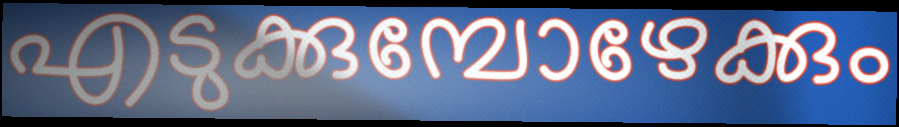
എടുക്കുമ്പോഴേക്കും